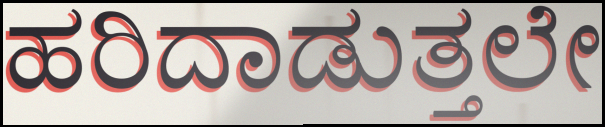
ಹರಿದಾಡುತ್ತಲೇ